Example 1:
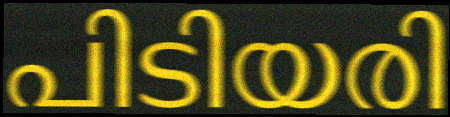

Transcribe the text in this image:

പിടിയരി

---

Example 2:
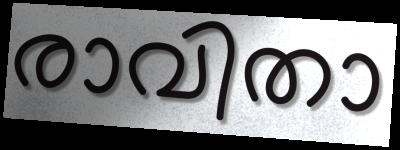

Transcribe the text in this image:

രാവിതാ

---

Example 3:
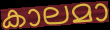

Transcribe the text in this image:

കാലമാ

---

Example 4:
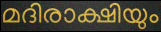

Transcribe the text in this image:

മദിരാക്ഷിയും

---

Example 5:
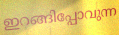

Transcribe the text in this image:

ഇറങ്ങിപ്പോവുന്ന